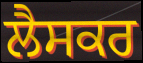
ਲੈਸਕਰ